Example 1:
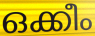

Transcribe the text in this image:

ഒക്കീം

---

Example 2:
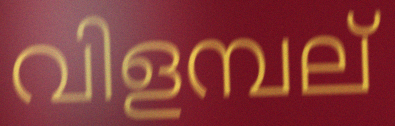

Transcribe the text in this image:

വിളമ്പല്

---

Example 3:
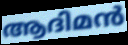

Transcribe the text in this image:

ആദിമൻ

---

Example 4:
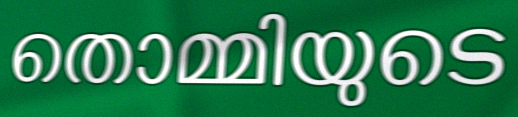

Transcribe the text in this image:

തൊമ്മിയുടെ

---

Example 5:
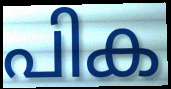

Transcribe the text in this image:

പിക